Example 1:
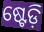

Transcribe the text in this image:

ଷ୍ଟେଡ଼ି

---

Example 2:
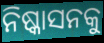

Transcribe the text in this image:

ନିଷ୍କାସନକୁ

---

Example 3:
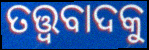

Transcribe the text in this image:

ତତ୍ତ୍ୱବାଦକୁ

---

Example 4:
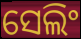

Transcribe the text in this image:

ସେଲିଂ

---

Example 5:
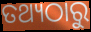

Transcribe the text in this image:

ତଥ୍ୟଠାରୁ